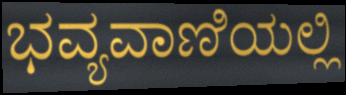
ಭವ್ಯವಾಣಿಯಲ್ಲಿ